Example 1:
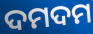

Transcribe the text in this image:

ଦମଦମ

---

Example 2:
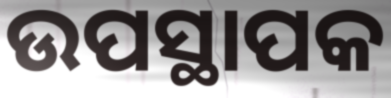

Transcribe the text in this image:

ଉପସ୍ଥାପକ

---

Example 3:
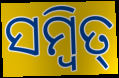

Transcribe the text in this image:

ସମ୍ବିତ୍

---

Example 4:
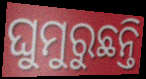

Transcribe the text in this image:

ଘୁମୁରୁଛନ୍ତି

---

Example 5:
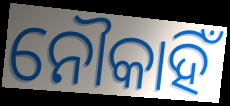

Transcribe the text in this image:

ନୌକାହିଁ